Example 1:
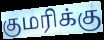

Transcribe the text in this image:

குமரிக்கு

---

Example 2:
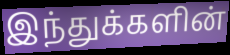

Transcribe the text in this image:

இந்துக்களின்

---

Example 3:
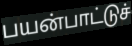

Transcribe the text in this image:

பயன்பாட்டுச்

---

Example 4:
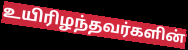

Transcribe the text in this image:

உயிரிழந்தவர்களின்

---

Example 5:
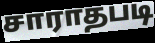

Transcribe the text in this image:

சாராதபடி